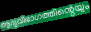
ആദ്യവിഭാഗത്തിന്റെയും